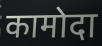
कामोदा